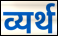
व्यर्थ